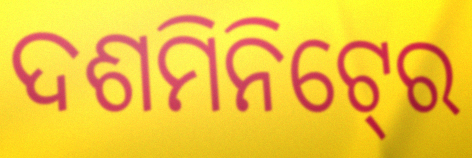
ଦଶମିନିଟ୍‍ରେ